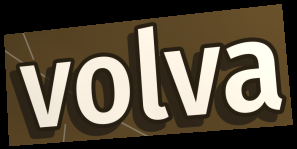
volva